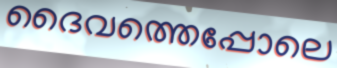
ദൈവത്തെപ്പോലെ